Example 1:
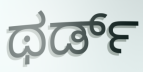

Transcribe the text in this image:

ಥರ್ಡ್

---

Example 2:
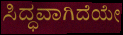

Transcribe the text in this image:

ಸಿದ್ಧವಾಗಿದೆಯೇ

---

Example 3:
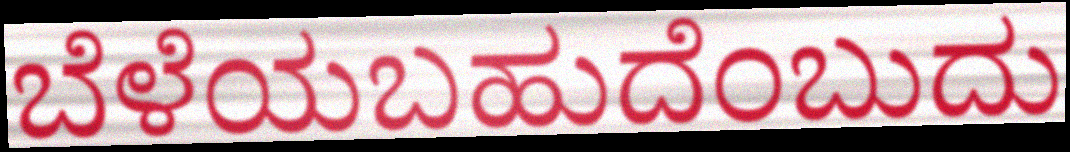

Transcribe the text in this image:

ಬೆಳೆಯಬಹುದೆಂಬುದು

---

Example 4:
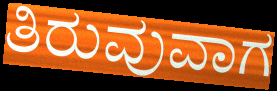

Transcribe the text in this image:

ತಿರುವುವಾಗ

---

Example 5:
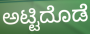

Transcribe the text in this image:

ಅಟ್ಟಿದೊಡೆ